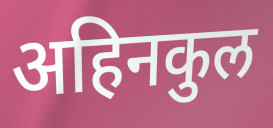
अहिनकुल